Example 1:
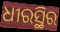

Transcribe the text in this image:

ଧୀରସ୍ଥିର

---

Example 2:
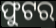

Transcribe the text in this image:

ଫୁଟର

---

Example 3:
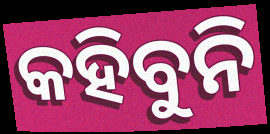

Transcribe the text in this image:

କହିବୁନି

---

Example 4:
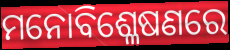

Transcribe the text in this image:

ମନୋବିଶ୍ଳେଷଣରେ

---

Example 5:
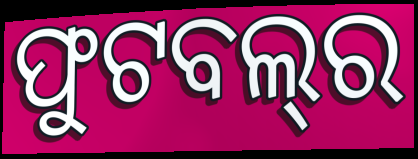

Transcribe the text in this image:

ଫୁଟବଲ୍‍ର